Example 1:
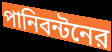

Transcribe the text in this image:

পানিবন্টনের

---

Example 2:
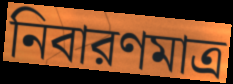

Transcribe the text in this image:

নিবারণমাত্র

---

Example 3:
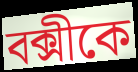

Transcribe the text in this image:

বক্সীকে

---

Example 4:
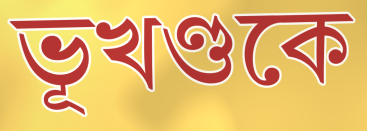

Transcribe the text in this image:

ভূখণ্ডকে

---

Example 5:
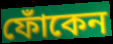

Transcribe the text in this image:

ফোঁকেন